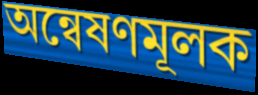
অন্বেষণমূলক